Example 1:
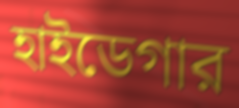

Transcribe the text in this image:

হাইডেগার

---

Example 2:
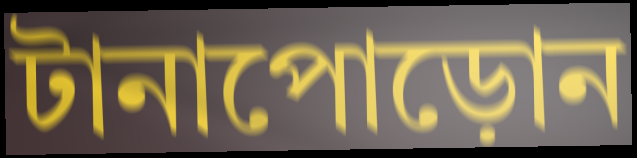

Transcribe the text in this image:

টানাপোড়োন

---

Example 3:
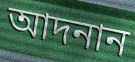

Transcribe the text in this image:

আদনান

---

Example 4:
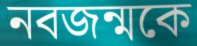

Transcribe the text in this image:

নবজন্মকে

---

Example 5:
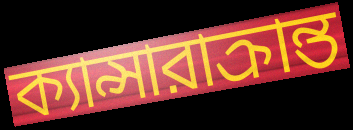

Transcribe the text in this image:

ক্যান্সারাক্রান্ত